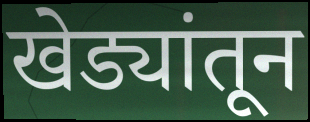
खेड्यांतून